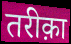
तरीक़ा